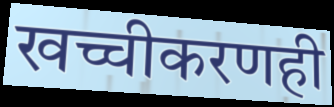
खच्चीकरणही